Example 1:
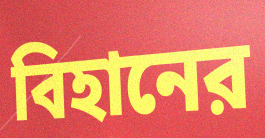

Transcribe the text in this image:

বিহানের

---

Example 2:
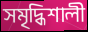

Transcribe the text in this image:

সমৃদ্ধিশালী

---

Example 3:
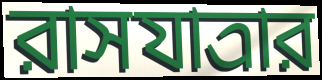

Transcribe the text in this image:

রাসযাত্রার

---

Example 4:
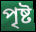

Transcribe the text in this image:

পৃষ্ট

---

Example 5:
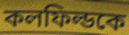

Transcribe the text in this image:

কলফিল্ডকে